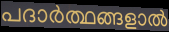
പദാർത്ഥങ്ങളാൽ